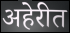
अहेरीत